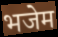
भजेम